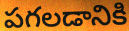
పగలడానికి